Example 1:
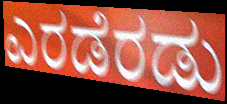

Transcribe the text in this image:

ಎರಡೆರಡು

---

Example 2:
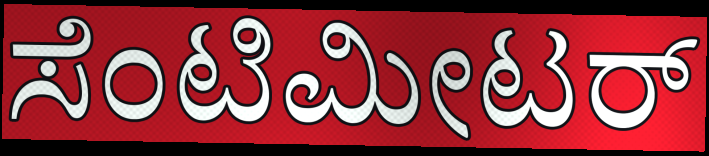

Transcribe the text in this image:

ಸೆಂಟಿಮೀಟರ್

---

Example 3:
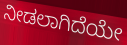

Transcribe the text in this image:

ನೀಡಲಾಗಿದೆಯೇ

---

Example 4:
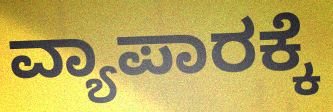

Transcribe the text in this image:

ವ್ಯಾಪಾರಕ್ಕೆ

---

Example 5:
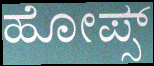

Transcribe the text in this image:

ಹೋಪ್ಸ್